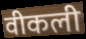
वीकली